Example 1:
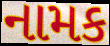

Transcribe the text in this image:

નામક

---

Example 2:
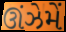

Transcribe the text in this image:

ઊંઝેમેં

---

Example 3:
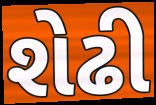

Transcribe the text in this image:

શેઢી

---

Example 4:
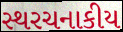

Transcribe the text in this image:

સ્થરચનાકીય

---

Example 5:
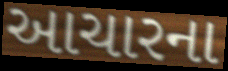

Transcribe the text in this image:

આચારના